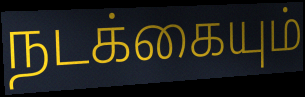
நடக்கையும்